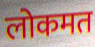
लोकमत